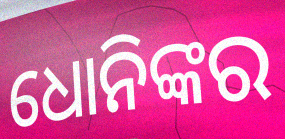
ଧୋନିଙ୍କର